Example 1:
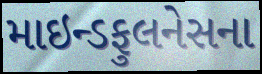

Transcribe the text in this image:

માઇન્ડફુલનેસના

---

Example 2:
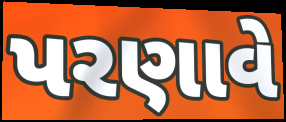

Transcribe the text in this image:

પરણાવે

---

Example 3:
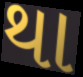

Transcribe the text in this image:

થા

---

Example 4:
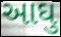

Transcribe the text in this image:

આઘુ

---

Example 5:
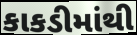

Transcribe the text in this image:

કાકડીમાંથી